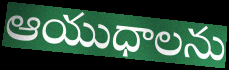
ఆయుధాలను